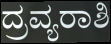
ದ್ರವ್ಯರಾಶಿ